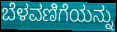
ಬೆಳವಣಿಗೆಯನ್ನು